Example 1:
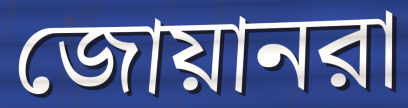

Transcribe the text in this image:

জোয়ানরা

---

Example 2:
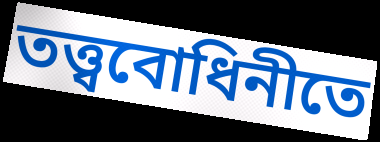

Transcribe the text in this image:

তত্ত্ববোধিনীতে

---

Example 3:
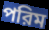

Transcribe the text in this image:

পরিম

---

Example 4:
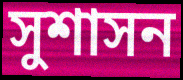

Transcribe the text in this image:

সুশাসন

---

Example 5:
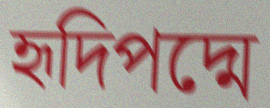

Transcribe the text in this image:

হৃদিপদ্মে